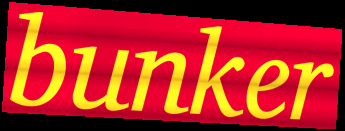
bunker